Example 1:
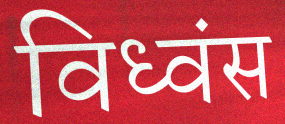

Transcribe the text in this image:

विध्वंस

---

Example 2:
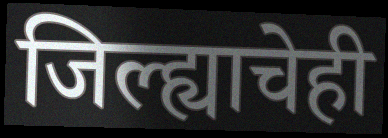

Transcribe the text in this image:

जिल्ह्याचेही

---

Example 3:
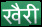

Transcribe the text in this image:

खैरी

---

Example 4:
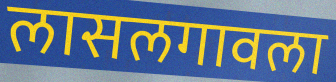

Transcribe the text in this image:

लासलगावला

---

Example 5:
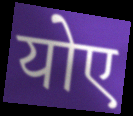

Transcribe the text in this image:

योए